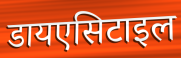
डायएसिटाइल